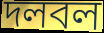
দলবল